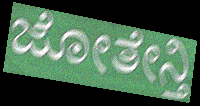
ಜೋತೇನ್ತಿ